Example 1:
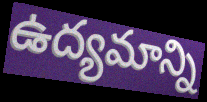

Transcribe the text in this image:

ఉద్యమాన్ని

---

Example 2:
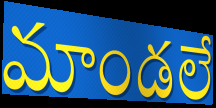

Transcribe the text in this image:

మాండలే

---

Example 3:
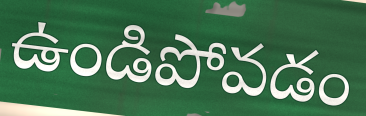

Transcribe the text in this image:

ఉండిపోవడం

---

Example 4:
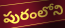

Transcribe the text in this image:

పురంలోని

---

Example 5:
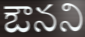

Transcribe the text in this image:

ఔనని